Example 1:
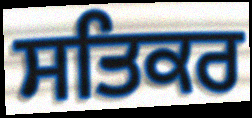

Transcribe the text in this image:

ਸਤਿਕਰ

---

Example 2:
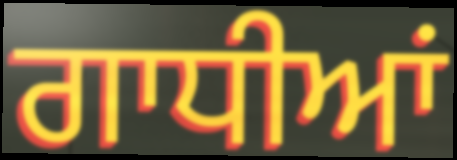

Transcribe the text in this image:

ਗਾਧੀਆਂ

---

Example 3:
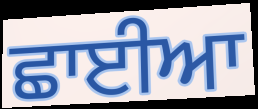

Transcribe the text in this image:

ਛਾਈਆ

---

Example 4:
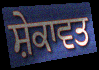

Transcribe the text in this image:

ਸ਼ੇਕਾਵਤ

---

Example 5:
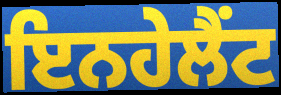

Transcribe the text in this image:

ਇਨਹੇਲੈਂਟ